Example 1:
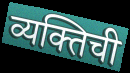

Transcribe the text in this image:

व्यक्तिची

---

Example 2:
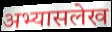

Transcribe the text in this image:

अभ्यासलेख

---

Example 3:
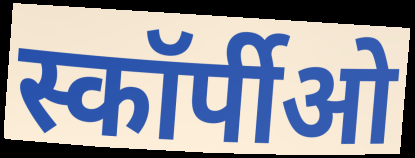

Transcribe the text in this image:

स्कॉर्पीओ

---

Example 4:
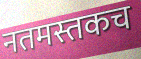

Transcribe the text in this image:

नतमस्तकच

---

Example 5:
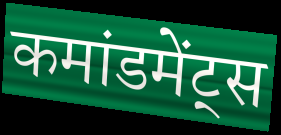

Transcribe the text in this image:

कमांडमेंट्स